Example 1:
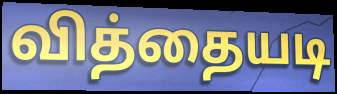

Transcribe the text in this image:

வித்தையடி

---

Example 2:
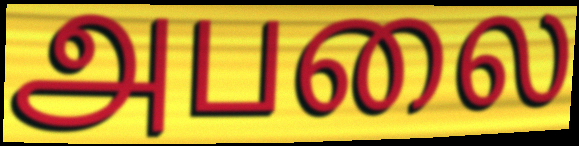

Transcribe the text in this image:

அபலை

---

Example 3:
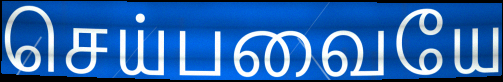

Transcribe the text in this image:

செய்பவையே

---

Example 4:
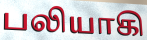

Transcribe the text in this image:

பலியாகி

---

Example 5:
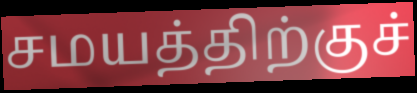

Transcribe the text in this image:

சமயத்திற்குச்